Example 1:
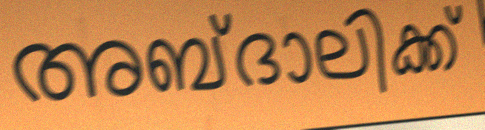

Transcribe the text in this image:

അബ്ദാലിക്ക്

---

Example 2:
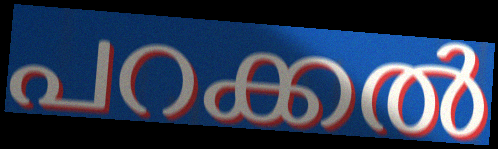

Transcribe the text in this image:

പറക്കൽ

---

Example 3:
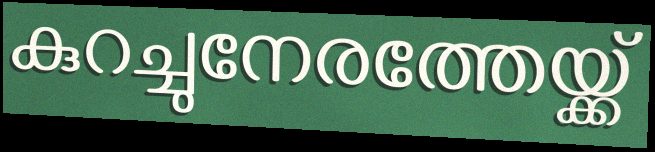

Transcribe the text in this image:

കുറച്ചുനേരത്തേയ്ക്ക്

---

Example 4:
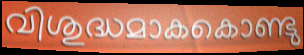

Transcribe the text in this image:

വിശുദ്ധമാകകൊണ്ടു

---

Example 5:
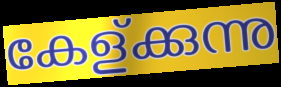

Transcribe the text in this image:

കേള്ക്കുന്നു